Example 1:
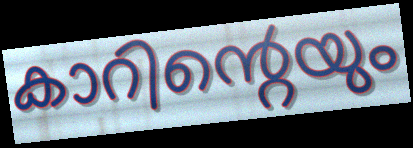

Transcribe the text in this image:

കാറിന്റെയും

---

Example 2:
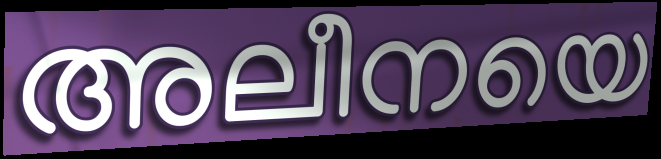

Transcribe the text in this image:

അലീനയെ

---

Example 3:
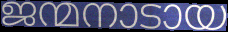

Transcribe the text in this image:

ജന്മനാടായ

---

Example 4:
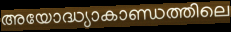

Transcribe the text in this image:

അയോദ്ധ്യാകാണ്ഡത്തിലെ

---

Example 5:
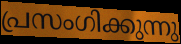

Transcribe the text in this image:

പ്രസംഗിക്കുന്നു